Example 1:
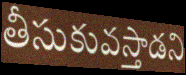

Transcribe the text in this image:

తీసుకువస్తాడని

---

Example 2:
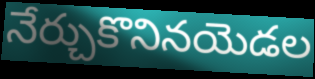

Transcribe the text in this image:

నేర్చుకొనినయెడల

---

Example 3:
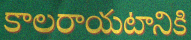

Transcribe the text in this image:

కాలరాయటానికి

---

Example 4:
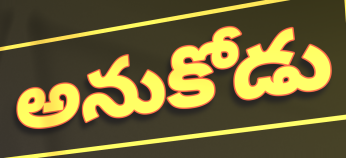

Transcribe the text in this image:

అనుకోడు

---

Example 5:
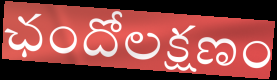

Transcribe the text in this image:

ఛందోలక్షణం